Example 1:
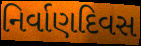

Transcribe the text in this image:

નિર્વાણદિવસ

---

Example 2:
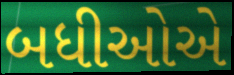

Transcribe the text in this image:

બધીઓએ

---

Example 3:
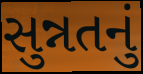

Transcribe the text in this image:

સુન્નતનું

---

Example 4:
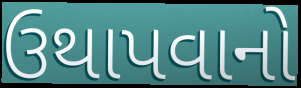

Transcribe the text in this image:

ઉથાપવાનો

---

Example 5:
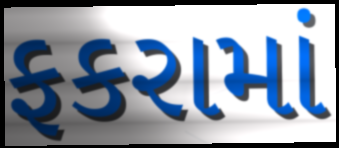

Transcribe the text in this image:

ફકરામાં